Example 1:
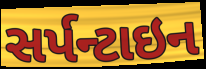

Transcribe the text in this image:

સર્પન્ટાઇન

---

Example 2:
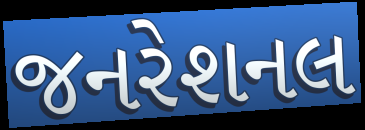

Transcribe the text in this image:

જનરેશનલ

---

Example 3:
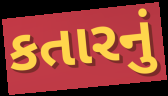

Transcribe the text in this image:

કતારનું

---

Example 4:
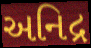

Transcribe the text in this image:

અનિદ્ર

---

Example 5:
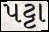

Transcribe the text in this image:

પટ્ટા